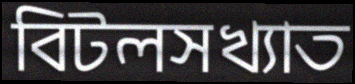
বিটলসখ্যাত